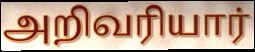
அறிவரியார்